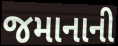
જમાનાની